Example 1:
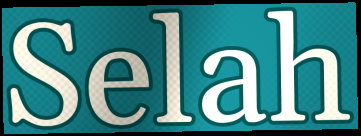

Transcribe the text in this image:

Selah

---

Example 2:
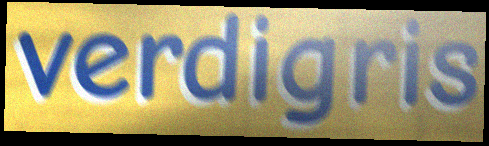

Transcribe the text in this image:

verdigris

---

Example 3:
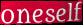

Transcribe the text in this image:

oneself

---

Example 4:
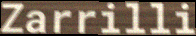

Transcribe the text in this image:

Zarrilli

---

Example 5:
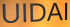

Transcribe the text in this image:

UIDAI